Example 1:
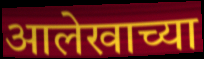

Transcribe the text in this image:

आलेखाच्या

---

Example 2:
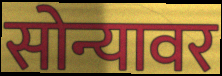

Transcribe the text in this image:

सोन्यावर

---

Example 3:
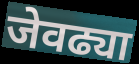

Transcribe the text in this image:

जेवढ्या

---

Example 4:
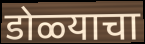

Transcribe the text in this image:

डोळ्याचा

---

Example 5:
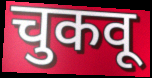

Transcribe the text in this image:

चुकवू